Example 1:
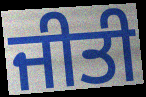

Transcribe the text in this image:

ਜੀਤੀ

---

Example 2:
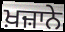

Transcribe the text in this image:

ਖ਼ਜ਼ਾਨੇ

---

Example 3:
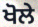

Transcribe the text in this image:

ਖੋਲੇ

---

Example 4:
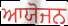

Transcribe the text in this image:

ਆਯੋਜਨ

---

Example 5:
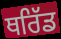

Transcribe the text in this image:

ਥਰਿੱਡ